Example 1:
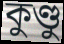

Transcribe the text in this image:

কুণ্ডু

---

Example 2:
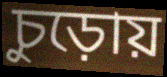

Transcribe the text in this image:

চুড়োয়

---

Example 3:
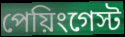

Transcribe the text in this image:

পেয়িংগেস্ট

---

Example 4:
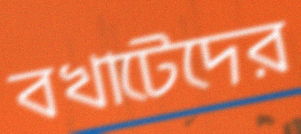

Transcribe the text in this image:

বখাটেদের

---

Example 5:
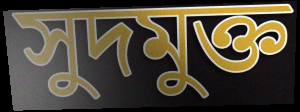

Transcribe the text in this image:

সুদমুক্ত